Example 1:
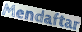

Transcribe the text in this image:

Mendaftar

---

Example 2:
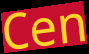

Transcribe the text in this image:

Cen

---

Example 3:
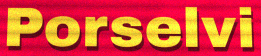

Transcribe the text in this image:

Porselvi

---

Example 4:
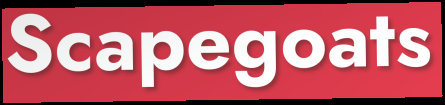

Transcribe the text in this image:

Scapegoats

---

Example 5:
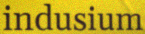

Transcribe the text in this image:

indusium